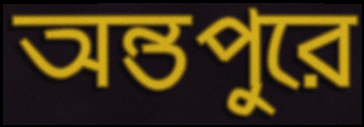
অন্তপুরে